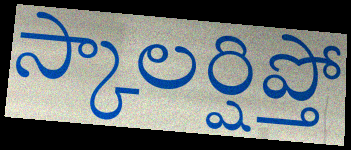
స్కాలర్షిప్తో